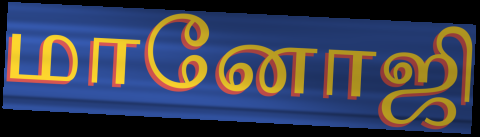
மானோஜி